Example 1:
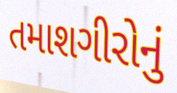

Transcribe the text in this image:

તમાશગીરોનું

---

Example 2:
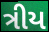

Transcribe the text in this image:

ત્રીય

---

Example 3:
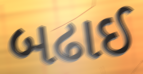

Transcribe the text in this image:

બઢાઈ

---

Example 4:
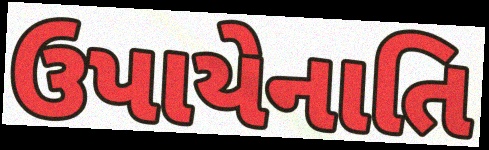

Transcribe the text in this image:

ઉપાયેનાતિ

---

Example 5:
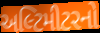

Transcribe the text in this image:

અલ્ટિમીટરનો